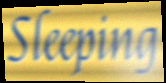
Sleeping